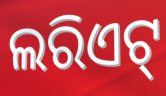
ଲରିଏଟ୍